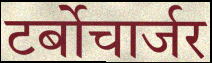
टर्बोचार्जर